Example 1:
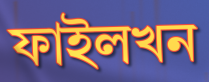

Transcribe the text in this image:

ফাইলখন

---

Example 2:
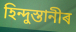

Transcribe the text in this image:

হিন্দুস্তানীৰ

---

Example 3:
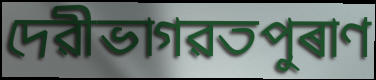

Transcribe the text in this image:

দেৱীভাগৱতপুৰাণ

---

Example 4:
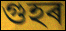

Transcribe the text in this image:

গুহৰ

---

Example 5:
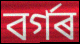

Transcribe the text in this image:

বৰ্গৰ